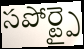
సపోర్ట్పై